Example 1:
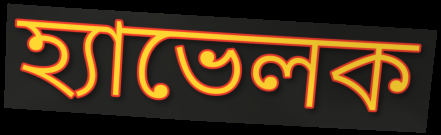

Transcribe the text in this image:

হ্যাভেলক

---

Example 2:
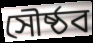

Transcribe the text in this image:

সৌষ্ঠব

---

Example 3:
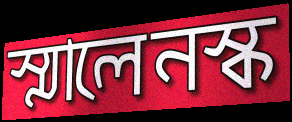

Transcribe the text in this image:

স্মালেনস্ক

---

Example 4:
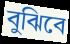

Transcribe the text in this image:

বুঝিবে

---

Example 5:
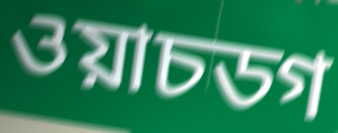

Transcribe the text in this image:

ওয়াচডগ